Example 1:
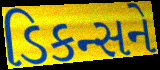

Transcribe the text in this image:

ડિકન્સને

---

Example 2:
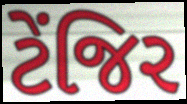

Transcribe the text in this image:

ટેંજિર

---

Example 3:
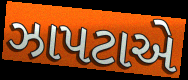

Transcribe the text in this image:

ઝાપટાએ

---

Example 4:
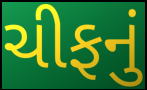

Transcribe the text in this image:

ચીફનું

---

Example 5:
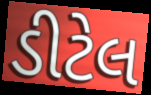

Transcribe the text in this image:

ડીટેલ